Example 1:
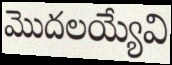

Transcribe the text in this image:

మొదలయ్యేవి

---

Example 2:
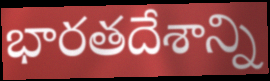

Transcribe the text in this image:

భారతదేశాన్ని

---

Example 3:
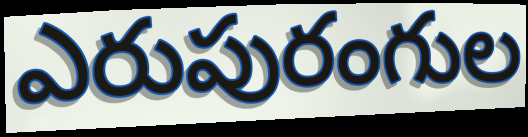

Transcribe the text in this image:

ఎరుపురంగుల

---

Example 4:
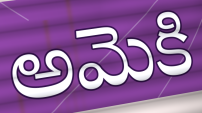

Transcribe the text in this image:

అమెకి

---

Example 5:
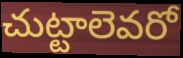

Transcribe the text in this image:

చుట్టాలెవరో